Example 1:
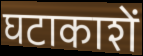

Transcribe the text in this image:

घटाकाशें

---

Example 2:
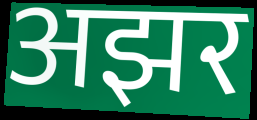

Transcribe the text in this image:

अझर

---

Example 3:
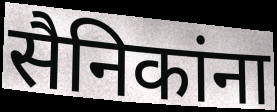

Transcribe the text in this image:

सैनिकांना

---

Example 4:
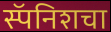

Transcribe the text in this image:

स्पॅनिशचा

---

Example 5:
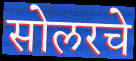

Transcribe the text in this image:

सोलरचे